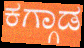
ಕಗ್ಗಾಡ